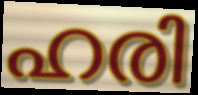
ഹരി